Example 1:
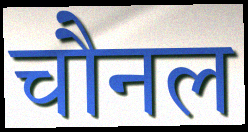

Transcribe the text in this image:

चौनल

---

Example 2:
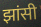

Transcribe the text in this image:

झांसी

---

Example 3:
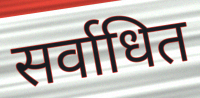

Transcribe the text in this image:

सर्वाधित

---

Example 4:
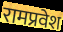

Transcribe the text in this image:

रामप्रवेश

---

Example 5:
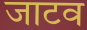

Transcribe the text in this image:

जाटव